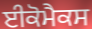
ਈਕੋਮੈਕਸ